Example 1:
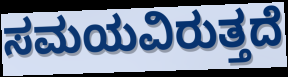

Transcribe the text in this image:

ಸಮಯವಿರುತ್ತದೆ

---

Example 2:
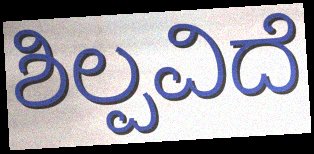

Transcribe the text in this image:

ಶಿಲ್ಪವಿದೆ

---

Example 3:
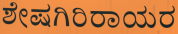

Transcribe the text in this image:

ಶೇಷಗಿರಿರಾಯರ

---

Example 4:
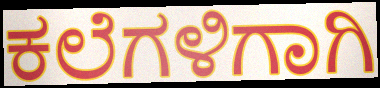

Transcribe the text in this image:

ಕಲೆಗಳಿಗಾಗಿ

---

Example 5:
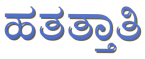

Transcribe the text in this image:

ಹತತ್ತಾತಿ